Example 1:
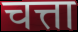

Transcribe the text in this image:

चत्ता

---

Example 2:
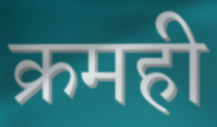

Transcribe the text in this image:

क्रमही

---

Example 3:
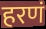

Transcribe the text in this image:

हरणं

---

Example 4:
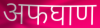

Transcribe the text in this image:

अफघाण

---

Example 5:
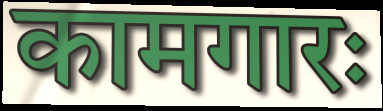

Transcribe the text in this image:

कामगारः